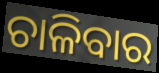
ଚାଳିବାର